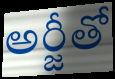
అర్జీతో